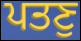
ਪਤਣੁ